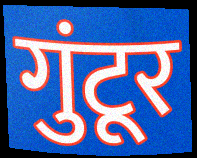
गुंटूर